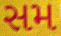
સમ